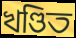
খণ্ডিত